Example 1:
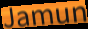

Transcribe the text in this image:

Jamun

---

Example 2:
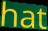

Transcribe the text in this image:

hat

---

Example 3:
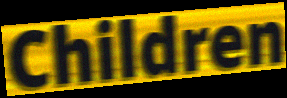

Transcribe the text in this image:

Children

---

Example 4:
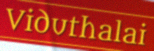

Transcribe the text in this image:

Viduthalai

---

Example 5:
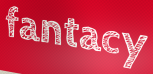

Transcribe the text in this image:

fantacy